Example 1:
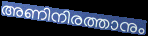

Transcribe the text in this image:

അണിനിരത്താനും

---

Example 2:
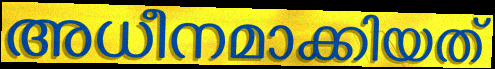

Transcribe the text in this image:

അധീനമാക്കിയത്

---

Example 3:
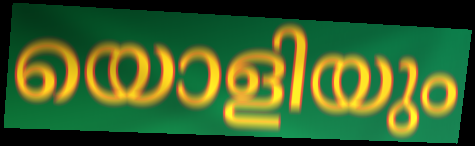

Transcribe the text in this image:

യൊളിയും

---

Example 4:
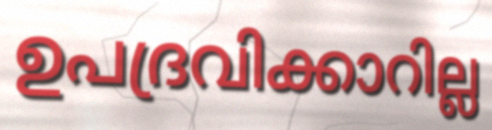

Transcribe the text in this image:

ഉപദ്രവിക്കാറില്ല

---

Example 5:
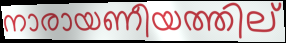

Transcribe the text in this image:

നാരായണീയത്തില്